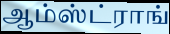
ஆம்ஸ்ட்ராங்